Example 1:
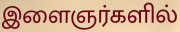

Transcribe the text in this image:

இளைஞர்களில்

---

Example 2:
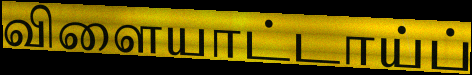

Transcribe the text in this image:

விளையாட்டாய்ப்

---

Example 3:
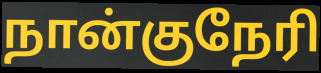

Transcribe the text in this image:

நான்குநேரி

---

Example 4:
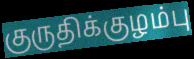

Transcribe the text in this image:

குருதிக்குழம்பு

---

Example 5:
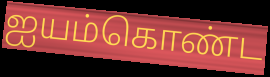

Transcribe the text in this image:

ஐயம்கொண்ட